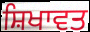
ਸ਼ਿਖਾਵਤ